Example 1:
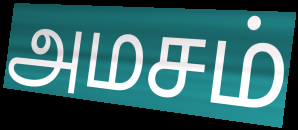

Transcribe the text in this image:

அமசம்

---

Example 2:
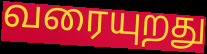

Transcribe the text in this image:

வரையுறது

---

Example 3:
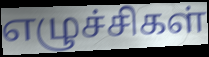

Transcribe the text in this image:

எழுச்சிகள்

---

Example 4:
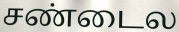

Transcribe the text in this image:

சண்டைல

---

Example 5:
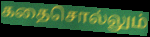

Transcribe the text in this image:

கதைசொல்லும்